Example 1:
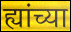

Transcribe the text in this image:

ह्यांच्या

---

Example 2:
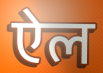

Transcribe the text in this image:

ऐल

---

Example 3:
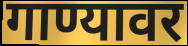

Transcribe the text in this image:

गाण्यावर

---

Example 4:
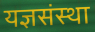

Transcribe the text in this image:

यज्ञसंस्था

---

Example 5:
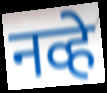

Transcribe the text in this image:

नव्हे